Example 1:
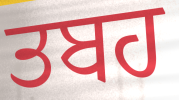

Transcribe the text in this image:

ਤਬਹ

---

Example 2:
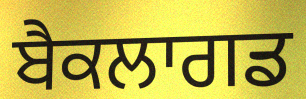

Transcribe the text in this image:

ਬੈਕਲਾਗਡ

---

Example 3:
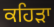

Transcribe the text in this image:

ਕਹਿੜਾ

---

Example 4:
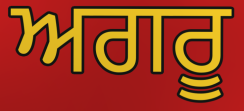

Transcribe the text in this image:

ਅਗਰੂ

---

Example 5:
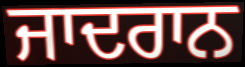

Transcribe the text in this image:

ਜਾਦਰਾਨ